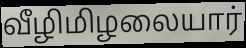
வீழிமிழலையார்